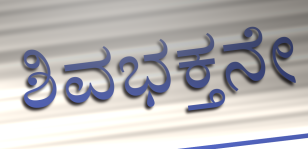
ಶಿವಭಕ್ತನೇ